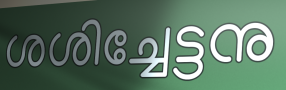
ശശിച്ചേട്ടനു